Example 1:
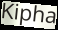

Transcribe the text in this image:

Kipha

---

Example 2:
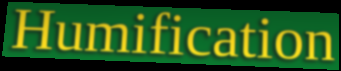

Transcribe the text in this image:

Humification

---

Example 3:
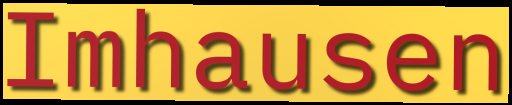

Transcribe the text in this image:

Imhausen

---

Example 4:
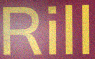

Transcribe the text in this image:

Rill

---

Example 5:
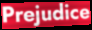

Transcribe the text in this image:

Prejudice